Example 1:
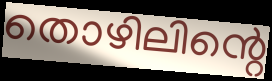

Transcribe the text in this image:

തൊഴിലിന്റെ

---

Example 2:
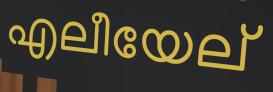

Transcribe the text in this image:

എലീയേല്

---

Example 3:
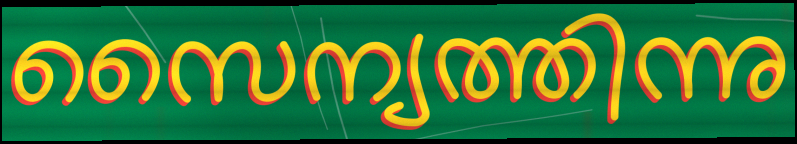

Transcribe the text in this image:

സൈന്യത്തിന്നു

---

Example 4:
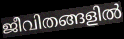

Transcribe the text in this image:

ജീവിതങ്ങളിൽ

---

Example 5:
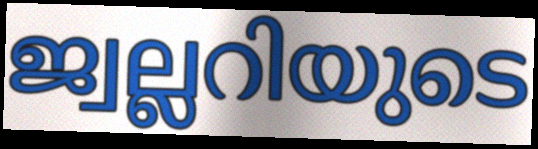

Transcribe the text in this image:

ജ്വല്ലറിയുടെ